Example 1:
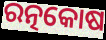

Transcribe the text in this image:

ରତ୍ନକୋଷ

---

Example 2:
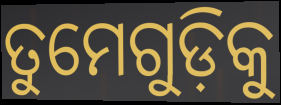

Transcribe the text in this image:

ତୁମେଗୁଡ଼ିକୁ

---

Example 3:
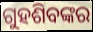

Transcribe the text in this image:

ଗୁହଶିବଙ୍କର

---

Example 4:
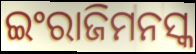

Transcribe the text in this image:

ଇଂରାଜିମନସ୍କ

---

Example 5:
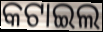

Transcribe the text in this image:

କଟାଇଲ